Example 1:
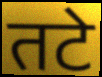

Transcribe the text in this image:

तटे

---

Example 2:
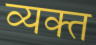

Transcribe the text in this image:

व्यक्‍त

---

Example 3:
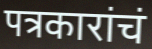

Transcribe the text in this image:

पत्रकारांचं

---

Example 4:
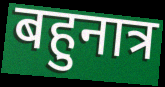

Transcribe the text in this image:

बहुनात्र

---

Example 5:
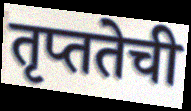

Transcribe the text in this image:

तृप्ततेची